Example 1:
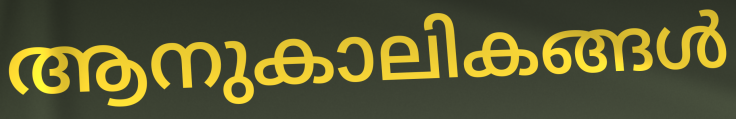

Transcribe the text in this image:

ആനുകാലികങ്ങൾ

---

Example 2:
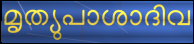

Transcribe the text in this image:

മൃത്യുപാശാദിവ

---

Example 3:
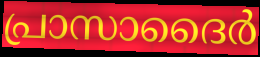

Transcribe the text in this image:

പ്രാസാദൈർ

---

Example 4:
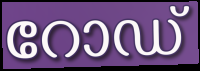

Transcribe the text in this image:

റോഡ്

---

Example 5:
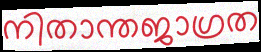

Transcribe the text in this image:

നിതാന്തജാഗ്രത